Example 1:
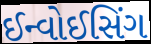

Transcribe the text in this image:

ઈન્વોઈસિંગ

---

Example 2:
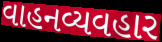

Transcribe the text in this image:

વાહનવ્યવહાર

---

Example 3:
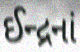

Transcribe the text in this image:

ઈન્દ્રનાં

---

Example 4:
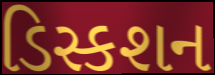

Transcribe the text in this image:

ડિસ્કશન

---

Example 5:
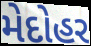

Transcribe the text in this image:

મેદોહર